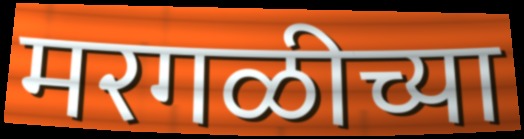
मरगळीच्या